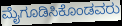
ಮೈಗೂಡಿಸಿಕೊಂಡವರು